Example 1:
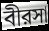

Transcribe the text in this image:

বীরসা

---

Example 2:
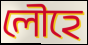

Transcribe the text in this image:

লৌহে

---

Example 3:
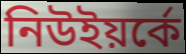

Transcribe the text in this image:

নিউইয়র্কে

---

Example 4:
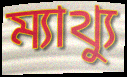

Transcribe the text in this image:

ম্যাথ্যু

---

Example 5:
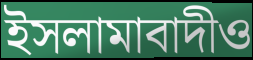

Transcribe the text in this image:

ইসলামাবাদীও